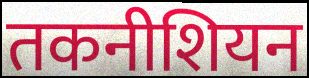
तकनीशियन